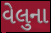
વેલુના